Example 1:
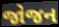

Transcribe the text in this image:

જોજન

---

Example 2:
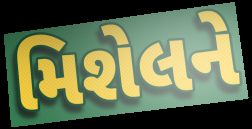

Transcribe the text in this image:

મિશેલને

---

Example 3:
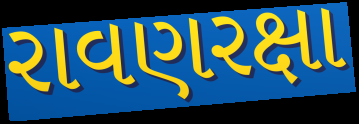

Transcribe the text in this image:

રાવણરક્ષા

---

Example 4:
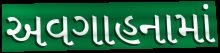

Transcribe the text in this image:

અવગાહનામાં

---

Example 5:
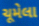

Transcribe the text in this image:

ચૂમેલા